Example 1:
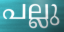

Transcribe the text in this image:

പല്ലു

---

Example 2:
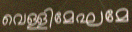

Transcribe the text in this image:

വെള്ളിമേഘമേ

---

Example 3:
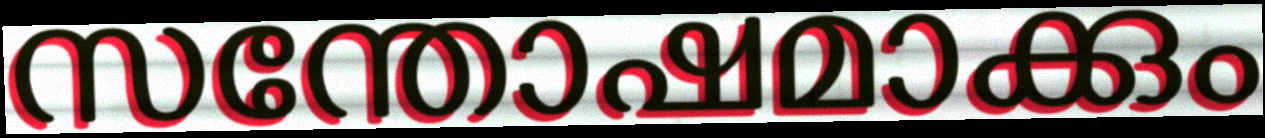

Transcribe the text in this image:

സന്തോഷമാക്കും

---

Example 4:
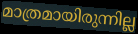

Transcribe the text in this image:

മാത്രമായിരുന്നില്ല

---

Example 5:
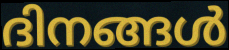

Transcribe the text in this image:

ദിനങ്ങൾ